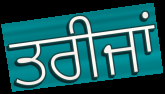
ਤਰੀਜਾਂ